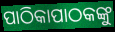
ପାଠିକାପାଠକଙ୍କୁ